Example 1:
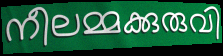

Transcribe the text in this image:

നീലമ്മക്കുരുവി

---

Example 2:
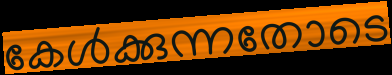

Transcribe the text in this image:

കേൾക്കുന്നതോടെ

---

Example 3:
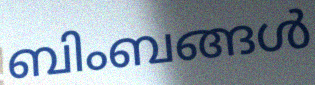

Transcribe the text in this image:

ബിംബങ്ങൾ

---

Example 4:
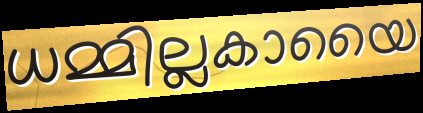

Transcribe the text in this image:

ധമ്മില്ലകായൈ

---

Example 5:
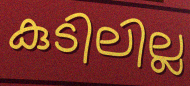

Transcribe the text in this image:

കുടിലില്ല